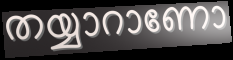
തയ്യാറാണോ